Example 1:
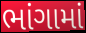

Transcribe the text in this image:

ભાંગામાં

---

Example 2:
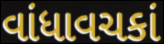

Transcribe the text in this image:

વાંધાવચકાં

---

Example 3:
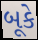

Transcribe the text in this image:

બૂકે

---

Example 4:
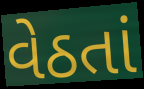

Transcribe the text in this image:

વેઠતાં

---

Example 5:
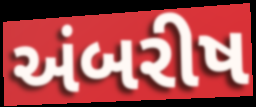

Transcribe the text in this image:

અંબરીષ